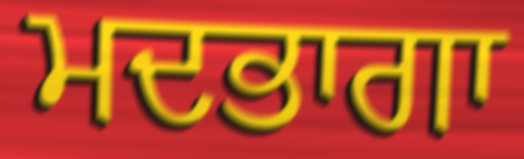
ਮਦਭਾਗਾ